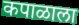
कपाळाला